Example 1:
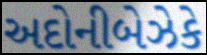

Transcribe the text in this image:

અદોનીબેઝેકે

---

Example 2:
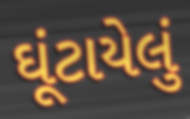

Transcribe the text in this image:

ઘૂંટાયેલું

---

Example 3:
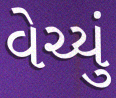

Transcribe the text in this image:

વેચ્યું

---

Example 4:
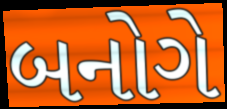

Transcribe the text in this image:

બનોગે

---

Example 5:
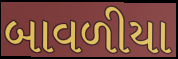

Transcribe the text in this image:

બાવળીયા